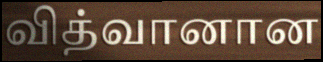
வித்வானான